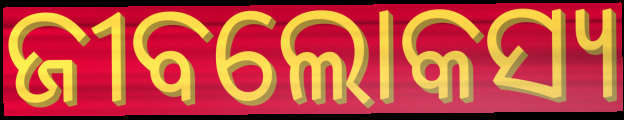
ଜୀବଲୋକସ୍ୟ